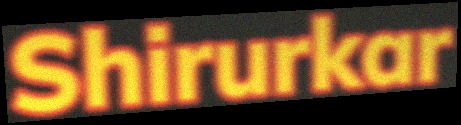
Shirurkar